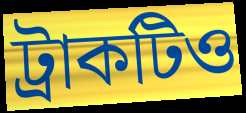
ট্রাকটিও